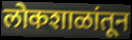
लोकशाळांतून